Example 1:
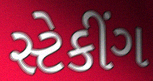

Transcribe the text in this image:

સ્ટેકીંગ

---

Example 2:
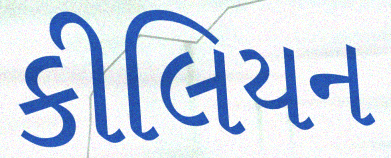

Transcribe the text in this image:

કીલિયન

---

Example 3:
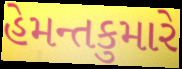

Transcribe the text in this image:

હેમન્તકુમારે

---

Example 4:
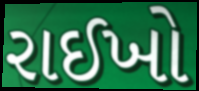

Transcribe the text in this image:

રાઈખો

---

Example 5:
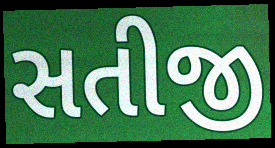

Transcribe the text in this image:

સતીજી